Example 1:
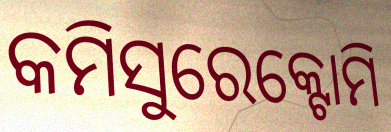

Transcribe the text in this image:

କମିସୁରେକ୍ଟୋମି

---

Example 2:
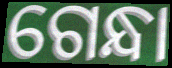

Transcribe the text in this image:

ଗେନ୍ଧା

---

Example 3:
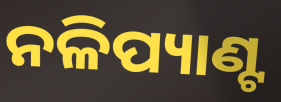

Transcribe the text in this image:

ନଳିପ୍ୟାଣ୍ଟ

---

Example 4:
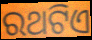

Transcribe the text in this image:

ରଥଟିଏ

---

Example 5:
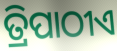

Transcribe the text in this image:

ତ୍ରିପାଠୀଏ